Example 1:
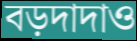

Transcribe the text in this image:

বড়দাদাও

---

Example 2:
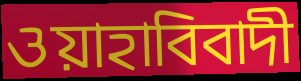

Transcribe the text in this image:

ওয়াহাবিবাদী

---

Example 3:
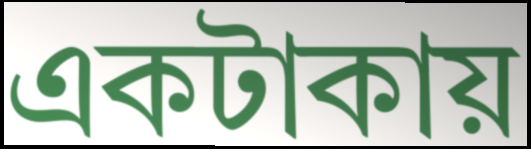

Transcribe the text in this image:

একটাকায়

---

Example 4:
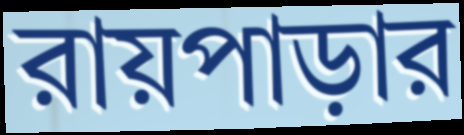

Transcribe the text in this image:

রায়পাড়ার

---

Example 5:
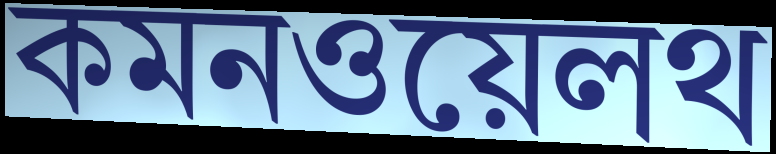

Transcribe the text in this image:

কমনওয়েলথ